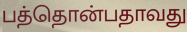
பத்தொன்பதாவது